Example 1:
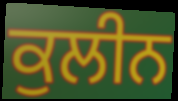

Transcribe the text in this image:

ਕੁਲੀਨ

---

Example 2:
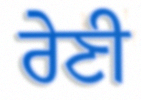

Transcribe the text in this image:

ਰੇਣੀ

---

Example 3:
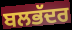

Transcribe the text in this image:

ਬਲਭੱਦਰ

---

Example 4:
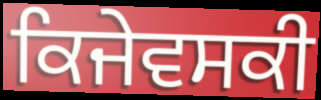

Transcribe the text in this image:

ਕਿਜੇਵਸਕੀ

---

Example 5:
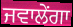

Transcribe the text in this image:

ਜਵਾਲੇਂਗਾ